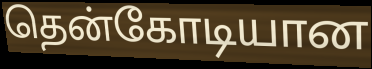
தென்கோடியான